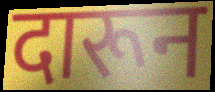
दारून